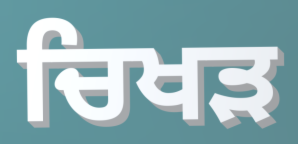
ਚਿਖੜ